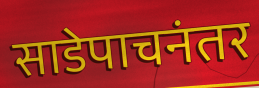
साडेपाचनंतर